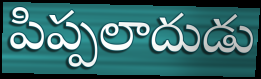
పిప్పలాదుడు